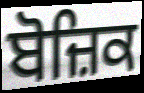
ਬੋਜ਼ਿਕ